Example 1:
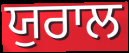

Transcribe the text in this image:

ਯੁਰਾਲ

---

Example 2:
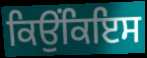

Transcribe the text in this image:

ਕਿਉਂਕਿਇਸ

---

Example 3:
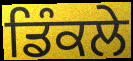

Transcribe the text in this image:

ਡਿੰਕਲੇ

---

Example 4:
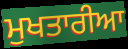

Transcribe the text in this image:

ਮੁਖਤਾਰੀਆ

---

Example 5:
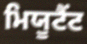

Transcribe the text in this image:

ਮਿਯੂਟੈਂਟ